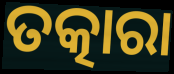
ତତ୍କାରା